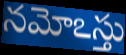
నమోఽస్తు